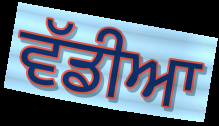
ਵੱਡੀਆ